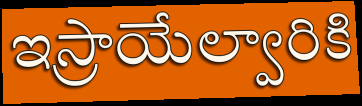
ఇస్రాయేల్వారికి